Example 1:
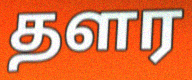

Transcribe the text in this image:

தளர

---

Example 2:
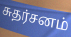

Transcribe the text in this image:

சுதர்சனம்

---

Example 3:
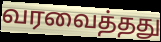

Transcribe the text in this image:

வரவைத்தது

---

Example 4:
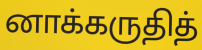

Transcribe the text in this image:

னாக்கருதித்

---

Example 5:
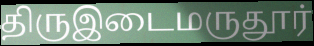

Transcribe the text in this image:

திருஇடைமருதூர்